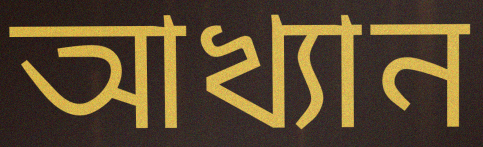
আখ্যান